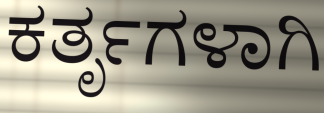
ಕರ್ತೃಗಳಾಗಿ